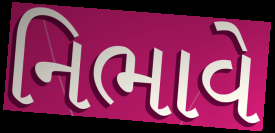
નિભાવે